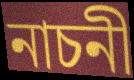
নাচনী